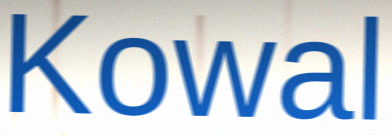
Kowal